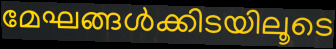
മേഘങ്ങൾക്കിടയിലൂടെ